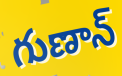
గుణాన్